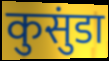
कुसुंडा